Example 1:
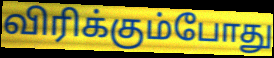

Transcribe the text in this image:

விரிக்கும்போது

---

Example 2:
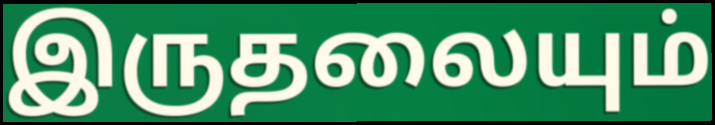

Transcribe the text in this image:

இருதலையும்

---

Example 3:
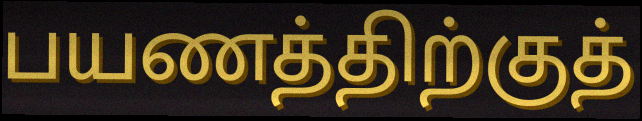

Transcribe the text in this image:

பயணத்திற்குத்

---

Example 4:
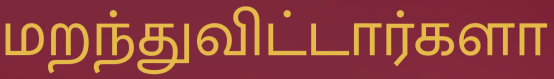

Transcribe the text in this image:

மறந்துவிட்டார்களா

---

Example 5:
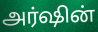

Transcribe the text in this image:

அர்ஷின்